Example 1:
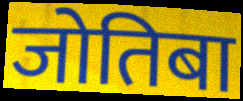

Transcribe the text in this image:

जोतिबा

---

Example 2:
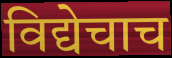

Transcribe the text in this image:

विद्येचाच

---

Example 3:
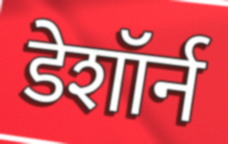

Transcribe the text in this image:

डेशॉर्न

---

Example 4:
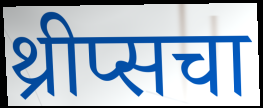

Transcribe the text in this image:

थ्रीप्सचा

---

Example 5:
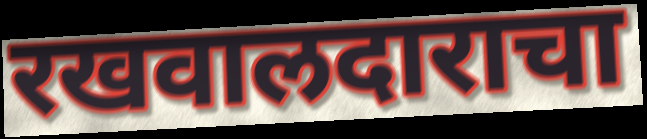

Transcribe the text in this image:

रखवालदाराचा